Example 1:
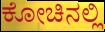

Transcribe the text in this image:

ಕೋಚಿನಲ್ಲಿ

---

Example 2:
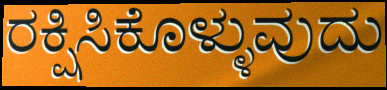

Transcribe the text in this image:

ರಕ್ಷಿಸಿಕೊಳ್ಳುವುದು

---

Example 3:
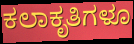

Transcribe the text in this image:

ಕಲಾಕೃತಿಗಳೂ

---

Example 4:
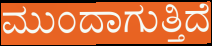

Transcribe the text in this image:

ಮುಂದಾಗುತ್ತಿದೆ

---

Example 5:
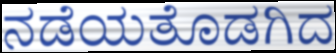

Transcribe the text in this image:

ನಡೆಯತೊಡಗಿದ